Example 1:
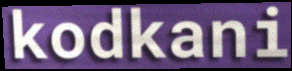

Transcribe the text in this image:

kodkani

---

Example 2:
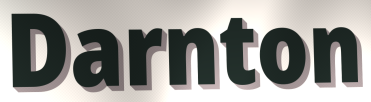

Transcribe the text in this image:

Darnton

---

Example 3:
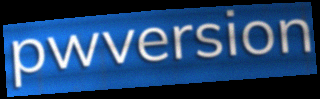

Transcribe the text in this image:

pwversion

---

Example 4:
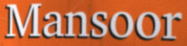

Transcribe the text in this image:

Mansoor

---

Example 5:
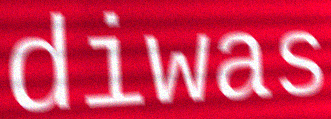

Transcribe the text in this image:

diwas